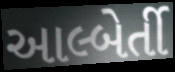
આલ્બેર્તી